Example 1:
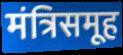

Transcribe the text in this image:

मंत्रिसमूह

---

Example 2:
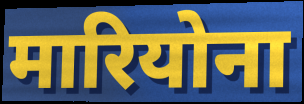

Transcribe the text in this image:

मारियोना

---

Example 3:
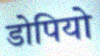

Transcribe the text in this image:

डोपियो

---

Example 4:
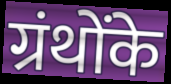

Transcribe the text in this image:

ग्रंथोंके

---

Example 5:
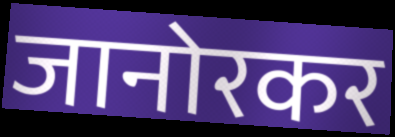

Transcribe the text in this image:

जानोरकर